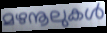
മഴനൂലുകൾ